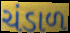
ચંડાળ